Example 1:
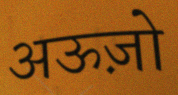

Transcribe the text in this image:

अऊज़ो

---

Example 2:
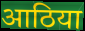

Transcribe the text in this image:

आठिया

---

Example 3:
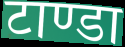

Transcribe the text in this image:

टाण्डा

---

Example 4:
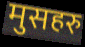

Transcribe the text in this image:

मुसहरु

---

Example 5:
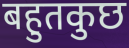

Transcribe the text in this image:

बहुतकुछ